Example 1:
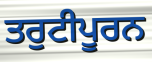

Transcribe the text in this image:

ਤਰੁਟੀਪੂਰਨ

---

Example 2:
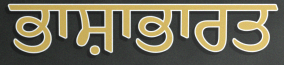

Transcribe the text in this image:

ਭਾਸ਼ਾਭਾਰਤ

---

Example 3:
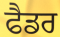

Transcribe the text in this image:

ਫੈਡਰ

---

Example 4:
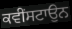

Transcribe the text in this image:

ਕਵੀਂਸਟਾਉਨ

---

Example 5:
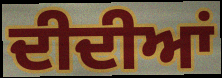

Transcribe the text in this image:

ਦੀਦੀਆਂ